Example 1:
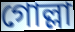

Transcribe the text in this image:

গোল্লা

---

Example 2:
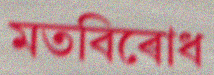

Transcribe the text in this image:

মতবিৰোধ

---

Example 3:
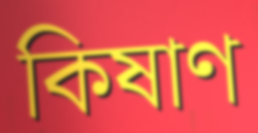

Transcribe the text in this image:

কিষাণ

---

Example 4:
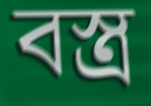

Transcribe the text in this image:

বস্ত্ৰ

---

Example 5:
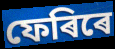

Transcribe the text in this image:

ফেৰিৰে